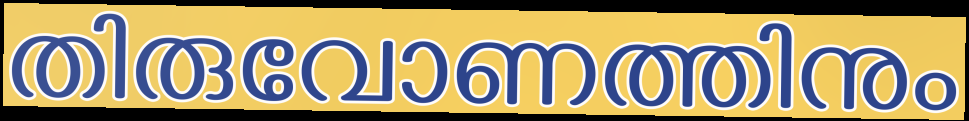
തിരുവോണത്തിനും